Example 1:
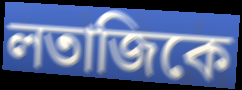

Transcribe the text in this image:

লতাজিকে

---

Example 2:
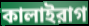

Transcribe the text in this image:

কালাইরাগ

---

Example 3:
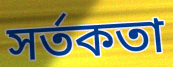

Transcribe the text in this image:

সর্তকতা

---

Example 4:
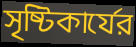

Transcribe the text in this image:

সৃষ্টিকার্যের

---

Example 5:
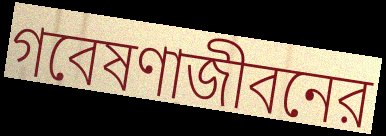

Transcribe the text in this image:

গবেষণাজীবনের